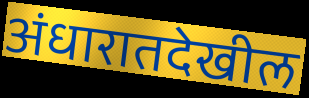
अंधारातदेखील